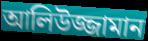
আলিউজ্জামান